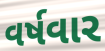
વર્ષવાર